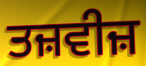
ਤਜ਼ਵੀਜ਼